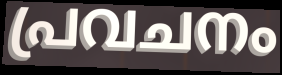
പ്രവചനം